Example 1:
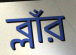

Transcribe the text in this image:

ব্লাঁর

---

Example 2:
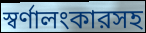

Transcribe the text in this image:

স্বর্ণালংকারসহ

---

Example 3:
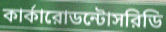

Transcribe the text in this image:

কার্কারোডন্টোসরিডি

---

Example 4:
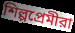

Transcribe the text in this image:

শিল্পপ্রেমীরা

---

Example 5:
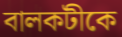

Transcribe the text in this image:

বালকটীকে